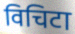
विचिटा